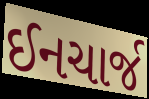
ઈનચાર્જ